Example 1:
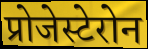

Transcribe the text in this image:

प्रोजेस्टेरोन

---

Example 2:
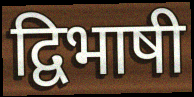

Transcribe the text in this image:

द्विभाषी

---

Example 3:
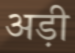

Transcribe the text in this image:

अड़ी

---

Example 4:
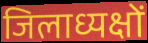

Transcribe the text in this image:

जिलाध्यक्षों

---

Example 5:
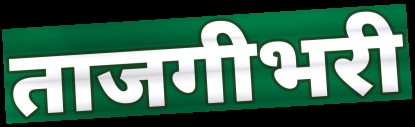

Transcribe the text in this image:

ताजगीभरी